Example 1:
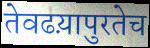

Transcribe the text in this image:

तेवढय़ापुरतेच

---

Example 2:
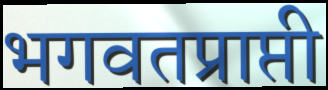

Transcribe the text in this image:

भगवतप्राप्ती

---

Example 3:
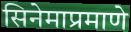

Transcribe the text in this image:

सिनेमाप्रमाणे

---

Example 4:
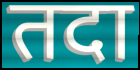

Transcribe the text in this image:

तदा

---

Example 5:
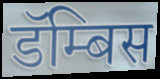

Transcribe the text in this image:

डॅम्बिस